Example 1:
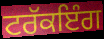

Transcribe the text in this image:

ਟਰੱਕਇੰਗ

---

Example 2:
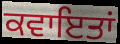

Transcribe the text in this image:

ਕਵਾਇਤਾਂ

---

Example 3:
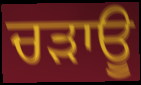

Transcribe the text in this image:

ਚੜਾਊ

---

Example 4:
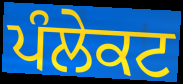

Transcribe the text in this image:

ਪੰਲੇਕਟ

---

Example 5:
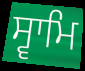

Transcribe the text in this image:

ਸ੍ਵਾਮਿ